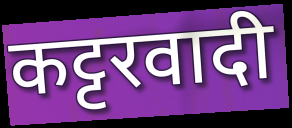
कट्टरवादी